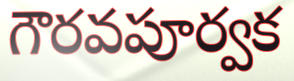
గౌరవపూర్వక